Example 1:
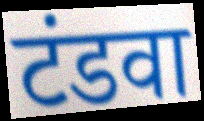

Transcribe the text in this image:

टंडवा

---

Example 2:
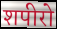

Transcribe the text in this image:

शपीरो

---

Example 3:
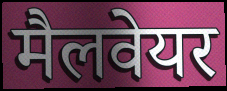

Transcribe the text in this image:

मैलवेयर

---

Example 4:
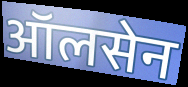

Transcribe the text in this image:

ऑलसेन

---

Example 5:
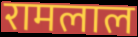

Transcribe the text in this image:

रामलाल